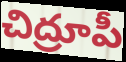
చిద్రూపీ